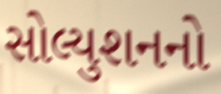
સોલ્યુશનનો